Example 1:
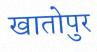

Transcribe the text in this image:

खातोपुर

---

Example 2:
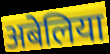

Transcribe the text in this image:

अबेलिया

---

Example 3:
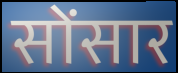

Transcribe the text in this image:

सोंसार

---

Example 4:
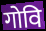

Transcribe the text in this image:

गोवि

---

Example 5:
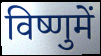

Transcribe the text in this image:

विष्णुमें